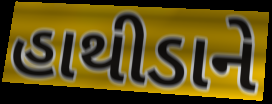
હાથીડાને